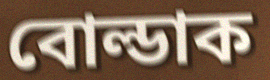
বোল্ডাক